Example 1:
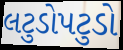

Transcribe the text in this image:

લટુડોપટુડો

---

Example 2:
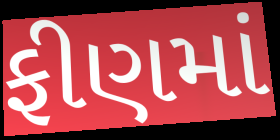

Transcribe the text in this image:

ફીણમાં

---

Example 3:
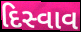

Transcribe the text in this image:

દિસ્વાવ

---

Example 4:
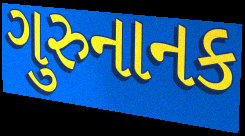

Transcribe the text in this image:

ગુરુનાનક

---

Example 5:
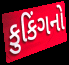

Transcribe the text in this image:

કુકિંગનો